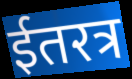
ईतरत्र